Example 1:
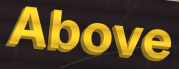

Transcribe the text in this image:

Above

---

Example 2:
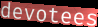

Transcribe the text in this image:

devotees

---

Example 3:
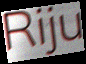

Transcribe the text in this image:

Riju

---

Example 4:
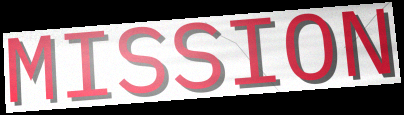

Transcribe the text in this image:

MISSION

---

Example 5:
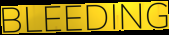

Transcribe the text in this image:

BLEEDING